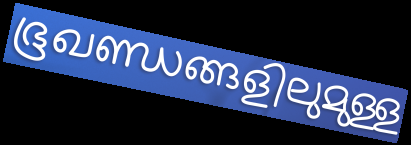
ഭൂഖണ്ഡങ്ങളിലുമുള്ള